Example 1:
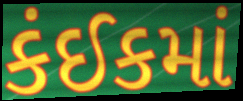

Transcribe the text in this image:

કંઈકમાં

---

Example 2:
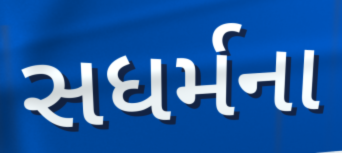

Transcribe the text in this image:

સધર્મના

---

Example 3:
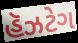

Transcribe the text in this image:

હૅઝટેગ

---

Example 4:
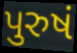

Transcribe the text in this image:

પુરુષં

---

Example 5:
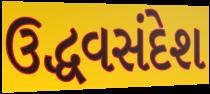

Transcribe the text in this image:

ઉદ્ધવસંદેશ